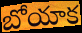
బోయాక